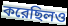
করেছিলও